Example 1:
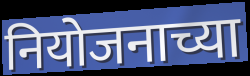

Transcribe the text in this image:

नियोजनाच्या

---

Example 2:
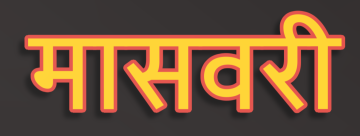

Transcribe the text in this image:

मासवरी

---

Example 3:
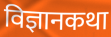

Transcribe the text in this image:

विज्ञानकथा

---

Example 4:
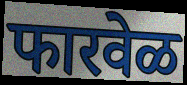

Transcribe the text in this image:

फारवेळ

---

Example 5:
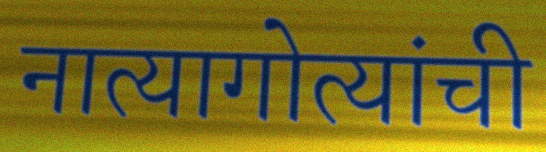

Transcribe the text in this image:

नात्यागोत्यांची